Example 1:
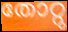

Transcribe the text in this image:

തോറ്റു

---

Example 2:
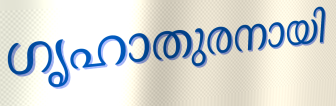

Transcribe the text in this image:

ഗൃഹാതുരനായി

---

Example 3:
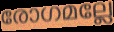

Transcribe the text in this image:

രോഗമല്ലേ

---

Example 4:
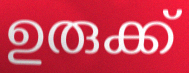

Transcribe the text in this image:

ഉരുക്ക്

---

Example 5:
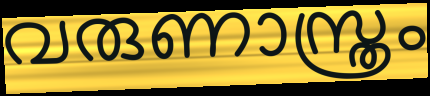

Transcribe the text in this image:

വരുണാസ്ത്രം